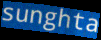
sunghta